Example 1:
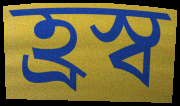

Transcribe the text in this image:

হ্ৰস্ব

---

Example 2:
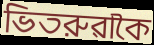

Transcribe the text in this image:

ভিতৰুৱাকৈ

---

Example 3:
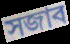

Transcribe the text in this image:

সজাব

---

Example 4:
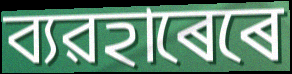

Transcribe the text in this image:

ব্যৱহাৰেৰে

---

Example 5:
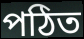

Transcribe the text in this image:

পঠিত